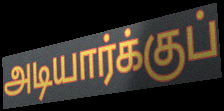
அடியார்க்குப்